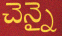
చెన్నై